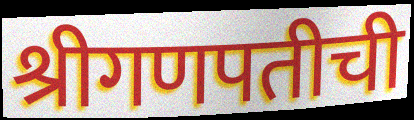
श्रीगणपतीची